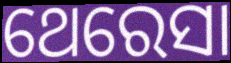
ଥେରେସା